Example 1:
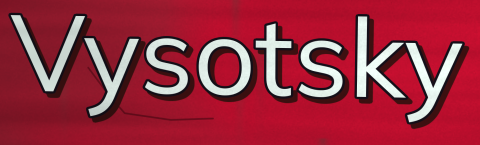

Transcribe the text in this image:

Vysotsky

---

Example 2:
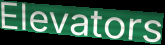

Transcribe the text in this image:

Elevators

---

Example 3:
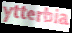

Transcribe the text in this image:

ytterbia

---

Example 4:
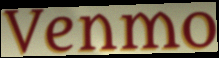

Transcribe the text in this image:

Venmo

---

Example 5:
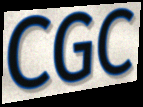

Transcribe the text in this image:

CGC